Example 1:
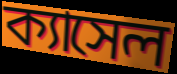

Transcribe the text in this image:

ক্যাসেল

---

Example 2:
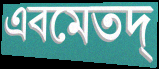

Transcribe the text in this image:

এবমেতদ্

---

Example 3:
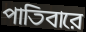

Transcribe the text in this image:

পাতিবারে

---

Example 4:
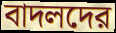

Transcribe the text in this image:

বাদলদের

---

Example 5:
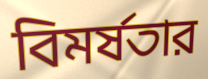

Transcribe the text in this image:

বিমর্ষতার